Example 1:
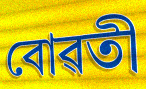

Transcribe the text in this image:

বোৱতী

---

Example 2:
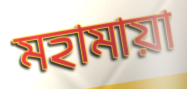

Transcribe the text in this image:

মহামায়া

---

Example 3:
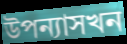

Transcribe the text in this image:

উপন্যাসখন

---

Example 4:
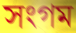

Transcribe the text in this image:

সংগম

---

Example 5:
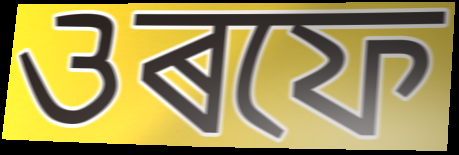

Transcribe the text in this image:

ওৰফে